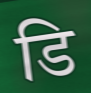
डि